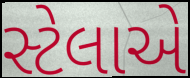
સ્ટેલાએ